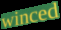
winced